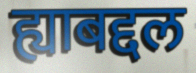
ह्याबद्दल